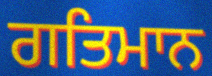
ਗਤਿਮਾਨ